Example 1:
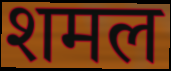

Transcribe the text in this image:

शमल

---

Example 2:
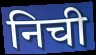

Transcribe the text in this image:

निची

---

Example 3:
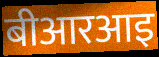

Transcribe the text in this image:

बीआरआइ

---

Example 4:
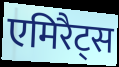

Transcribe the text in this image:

एमिरैट्स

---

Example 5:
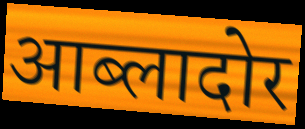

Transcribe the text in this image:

आब्लादोर